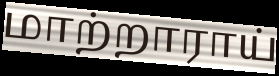
மாற்றாராய்